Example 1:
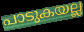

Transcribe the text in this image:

പാടുകയല്ല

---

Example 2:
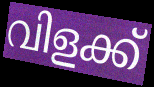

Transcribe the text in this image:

വിളക്ക്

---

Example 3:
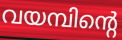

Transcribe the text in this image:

വയമ്പിന്റെ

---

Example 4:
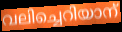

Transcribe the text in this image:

വലിച്ചെറിയാന്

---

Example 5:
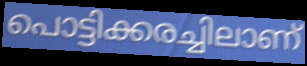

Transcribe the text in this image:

പൊട്ടിക്കരച്ചിലാണ്